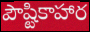
పౌష్టికాహార